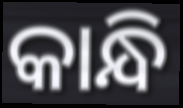
କାନ୍ଧି